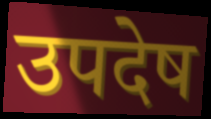
उपदेष